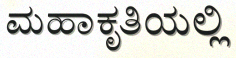
ಮಹಾಕೃತಿಯಲ್ಲಿ